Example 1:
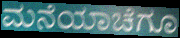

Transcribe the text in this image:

ಮನೆಯಾಚೆಗೂ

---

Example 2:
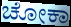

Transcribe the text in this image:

ಚೋಕಾ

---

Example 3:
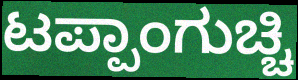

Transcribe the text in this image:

ಟಪ್ಪಾಂಗುಚ್ಚಿ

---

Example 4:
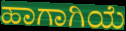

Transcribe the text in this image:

ಹಾಗಾಗಿಯೆ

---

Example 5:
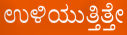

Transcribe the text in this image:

ಉಳಿಯುತ್ತಿತ್ತೇ